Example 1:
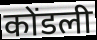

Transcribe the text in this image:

कोंडली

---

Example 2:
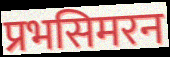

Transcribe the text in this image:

प्रभसिमरन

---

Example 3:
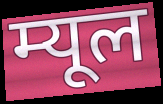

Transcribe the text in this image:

म्यूल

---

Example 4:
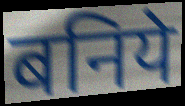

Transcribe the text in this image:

बनिये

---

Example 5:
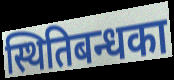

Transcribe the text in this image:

स्थितिबन्धका